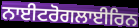
ਨਾਈਟਰੋਗਲਾਈਰਿਨ